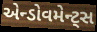
એન્ડોવમેન્ટ્સ